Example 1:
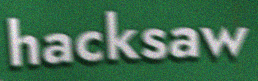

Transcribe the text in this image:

hacksaw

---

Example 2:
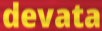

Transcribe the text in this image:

devata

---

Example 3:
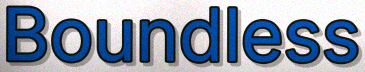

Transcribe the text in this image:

Boundless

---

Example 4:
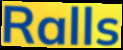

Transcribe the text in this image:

Ralls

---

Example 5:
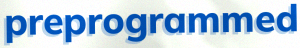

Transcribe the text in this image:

preprogrammed